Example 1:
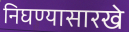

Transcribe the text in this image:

निघण्यासारखे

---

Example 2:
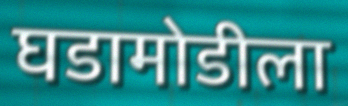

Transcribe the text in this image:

घडामोडीला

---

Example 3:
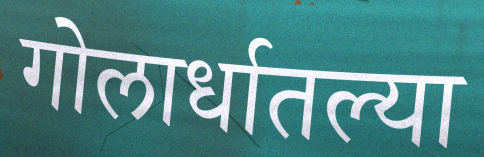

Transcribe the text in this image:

गोलार्धातल्या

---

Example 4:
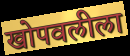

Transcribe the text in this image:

खोपवलीला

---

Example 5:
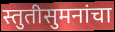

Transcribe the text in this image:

स्तुतीसुमनांचा